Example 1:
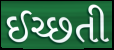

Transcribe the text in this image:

ઈચ્છતી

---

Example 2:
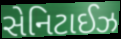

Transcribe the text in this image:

સેનિટાઈઝ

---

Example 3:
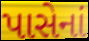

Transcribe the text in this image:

પાસેનાં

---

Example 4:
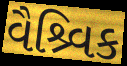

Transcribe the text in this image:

વૈશ્ર્વિક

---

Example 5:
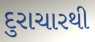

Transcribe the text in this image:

દુરાચારથી